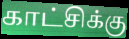
காட்சிக்கு